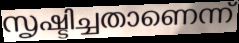
സൃഷ്ടിച്ചതാണെന്ന്